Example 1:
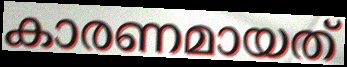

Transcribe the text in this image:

കാരണമായത്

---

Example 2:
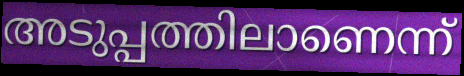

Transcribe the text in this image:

അടുപ്പത്തിലാണെന്ന്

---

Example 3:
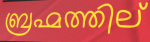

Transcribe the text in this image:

ബ്രഹ്മത്തില്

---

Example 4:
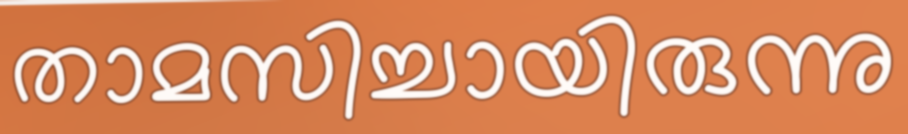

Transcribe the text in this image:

താമസിച്ചായിരുന്നു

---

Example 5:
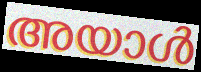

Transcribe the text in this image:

അയാൾ